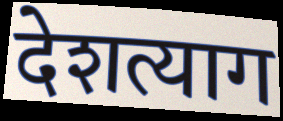
देशत्याग